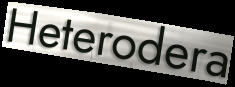
Heterodera